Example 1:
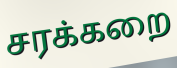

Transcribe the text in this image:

சரக்கறை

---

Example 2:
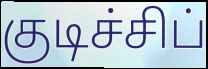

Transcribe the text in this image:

குடிச்சிப்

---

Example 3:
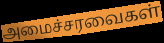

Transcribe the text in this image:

அமைச்சரவைகள்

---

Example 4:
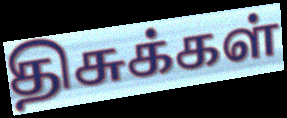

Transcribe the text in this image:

திசுக்கள்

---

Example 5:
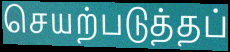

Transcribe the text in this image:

செயற்படுத்தப்